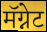
मॅग्नेट